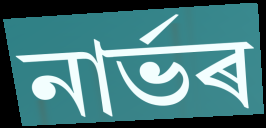
নাৰ্ভৰ